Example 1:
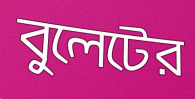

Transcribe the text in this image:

বুলেটের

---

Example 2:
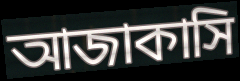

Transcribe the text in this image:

আজাকাসি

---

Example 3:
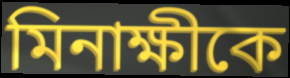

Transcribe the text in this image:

মিনাক্ষীকে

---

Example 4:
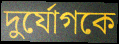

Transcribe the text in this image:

দুর্যোগকে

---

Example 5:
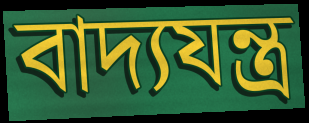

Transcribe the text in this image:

বাদ্যযন্ত্র